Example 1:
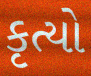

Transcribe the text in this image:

કૃત્યો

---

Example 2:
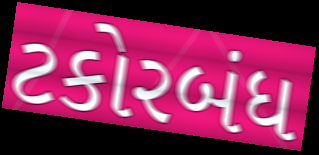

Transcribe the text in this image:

ટકોરબંધ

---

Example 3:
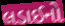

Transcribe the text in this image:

લડાઈનો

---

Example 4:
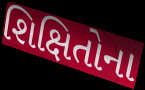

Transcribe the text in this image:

શિક્ષિતોના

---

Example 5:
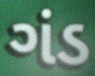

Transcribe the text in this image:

ગંડ